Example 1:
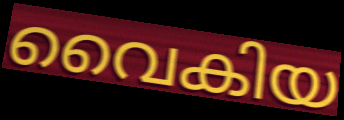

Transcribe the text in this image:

വൈകിയ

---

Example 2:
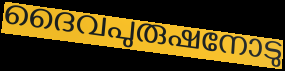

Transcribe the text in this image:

ദൈവപുരുഷനോടു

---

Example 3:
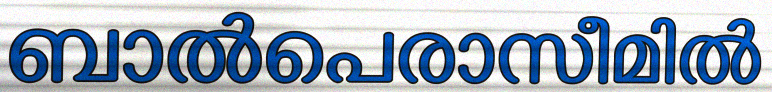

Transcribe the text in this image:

ബാൽപെരാസീമിൽ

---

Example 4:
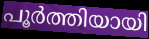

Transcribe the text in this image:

പൂർത്തിയായി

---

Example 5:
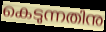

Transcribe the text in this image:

കെടുന്നതിനു